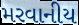
મરવાનીય